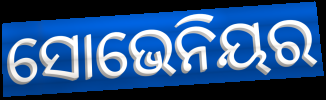
ସୋଭେନିୟର